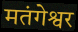
मतंगेश्वर